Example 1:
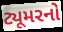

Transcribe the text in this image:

ટ્યૂમરનો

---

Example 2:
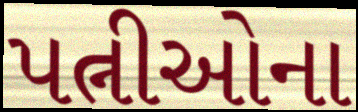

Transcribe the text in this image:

પત્નીઓના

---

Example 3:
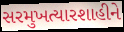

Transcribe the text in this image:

સરમુખત્યારશાહીને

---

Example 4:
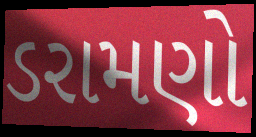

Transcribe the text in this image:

ડરામણો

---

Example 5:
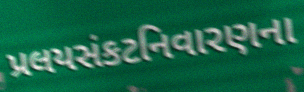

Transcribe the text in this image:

પ્રલયસંકટનિવારણના